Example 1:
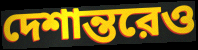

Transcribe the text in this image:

দেশান্তরেও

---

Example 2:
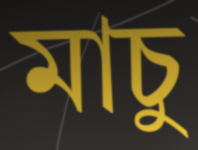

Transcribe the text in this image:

মাচু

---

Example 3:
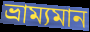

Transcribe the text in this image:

ভ্রাম্যমান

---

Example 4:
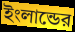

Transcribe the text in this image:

ইংলান্ডের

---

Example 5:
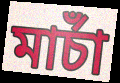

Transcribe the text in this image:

মার্চাঁ